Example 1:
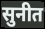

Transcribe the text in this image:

सुनीत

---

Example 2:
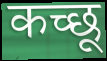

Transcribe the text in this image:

कच्छू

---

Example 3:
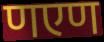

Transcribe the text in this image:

णएण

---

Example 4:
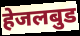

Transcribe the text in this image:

हेजलबुड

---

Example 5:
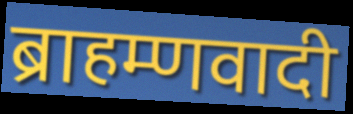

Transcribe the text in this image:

ब्राहम्णवादी